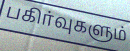
பகிர்வுகளும்